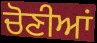
ਚੋਣੀਆਂ